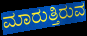
ಮಾರುತ್ತಿರುವ